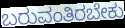
ಬರುವಂತಿರಬೇಕು